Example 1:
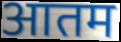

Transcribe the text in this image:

आतम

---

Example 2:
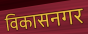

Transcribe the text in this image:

विकासनगर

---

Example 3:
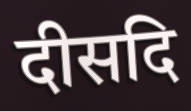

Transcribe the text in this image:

दीसदि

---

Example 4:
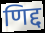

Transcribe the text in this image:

णिद्द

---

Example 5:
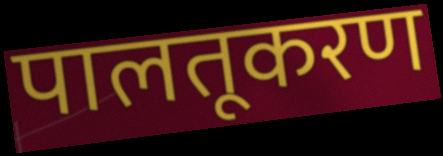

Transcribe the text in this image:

पालतूकरण